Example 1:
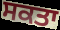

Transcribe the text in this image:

ਸਕਤਾ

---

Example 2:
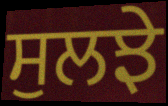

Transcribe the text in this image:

ਸੁਲਝੇ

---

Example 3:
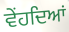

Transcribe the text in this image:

ਵੇਂਹਦਿਆਂ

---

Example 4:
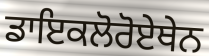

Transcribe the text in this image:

ਡਾਇਕਲੋਰੋਏਥੇਨ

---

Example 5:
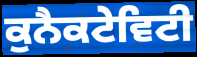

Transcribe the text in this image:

ਕੁਨੈਕਟੇਵਿਟੀ